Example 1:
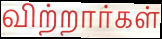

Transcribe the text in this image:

விற்றார்கள்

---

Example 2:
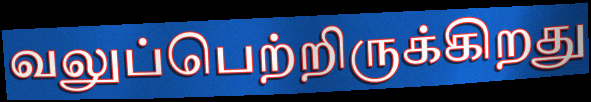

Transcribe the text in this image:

வலுப்பெற்றிருக்கிறது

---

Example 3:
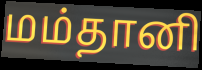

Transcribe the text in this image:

மம்தானி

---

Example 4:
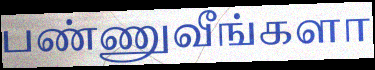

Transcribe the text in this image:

பண்ணுவீங்களா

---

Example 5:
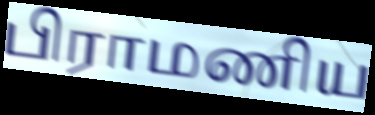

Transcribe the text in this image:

பிராமணிய